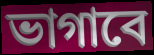
ভাগাবে